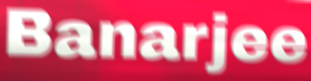
Banarjee